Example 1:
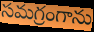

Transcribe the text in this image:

సమగ్రంగాను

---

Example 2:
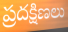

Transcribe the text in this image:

ప్రదక్షిణలు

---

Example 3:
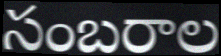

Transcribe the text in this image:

సంబరాల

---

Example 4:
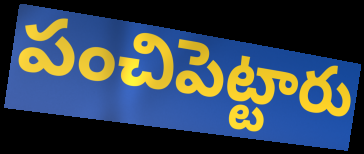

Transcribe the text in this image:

పంచిపెట్టారు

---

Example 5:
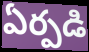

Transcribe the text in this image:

ఏర్పడి